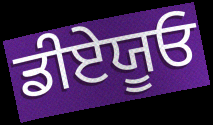
ਡੀਏਯੂਓ